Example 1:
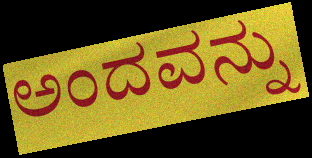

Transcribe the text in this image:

ಅಂದವನ್ನು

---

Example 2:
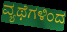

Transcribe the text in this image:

ವ್ಯಥೆಗಳಿಂದ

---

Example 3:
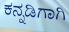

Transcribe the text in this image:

ಕನ್ನಡಿಗಾಗಿ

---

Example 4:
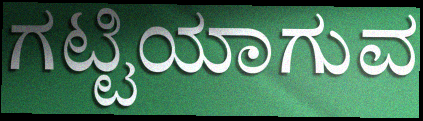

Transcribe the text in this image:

ಗಟ್ಟಿಯಾಗುವ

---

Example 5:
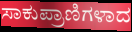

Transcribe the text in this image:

ಸಾಕುಪ್ರಾಣಿಗಳಾದ